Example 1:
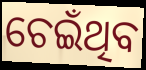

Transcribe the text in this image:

ଚେଇଁଥିବ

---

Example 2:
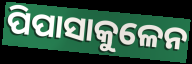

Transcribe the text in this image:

ପିପାସାକୁଳେନ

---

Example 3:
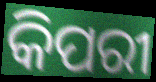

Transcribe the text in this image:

କିପରୀ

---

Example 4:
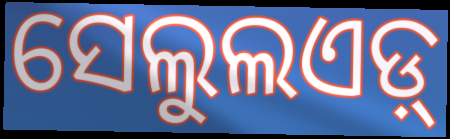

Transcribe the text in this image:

ସେଲୁଲଏଡ଼୍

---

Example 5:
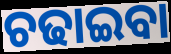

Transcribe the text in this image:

ଚଢାଇବା